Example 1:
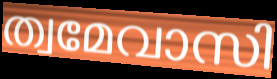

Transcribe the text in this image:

ത്വമേവാസി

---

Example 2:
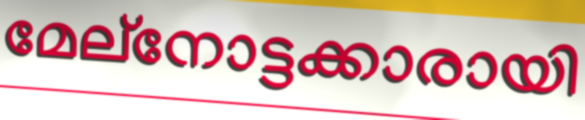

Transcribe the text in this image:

മേല്നോട്ടക്കാരായി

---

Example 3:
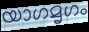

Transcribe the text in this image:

യാഗമൃഗം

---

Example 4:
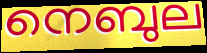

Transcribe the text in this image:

നെബുല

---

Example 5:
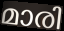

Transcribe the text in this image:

മാരി